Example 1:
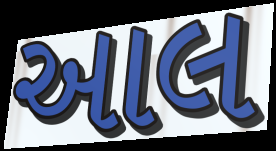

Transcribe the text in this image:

આલ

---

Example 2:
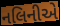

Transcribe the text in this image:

નલિનીએ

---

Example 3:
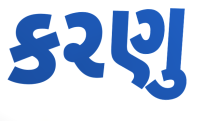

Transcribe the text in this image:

કરણુ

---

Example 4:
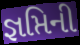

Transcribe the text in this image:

જ્ઞપ્તિની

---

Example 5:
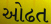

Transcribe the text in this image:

ઓઢત